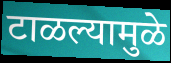
टाळल्यामुळे